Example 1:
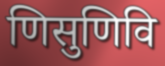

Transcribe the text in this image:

णिसुणिवि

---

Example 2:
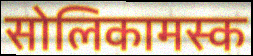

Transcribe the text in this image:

सोलिकामस्क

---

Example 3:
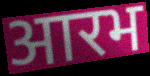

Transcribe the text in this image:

आरभ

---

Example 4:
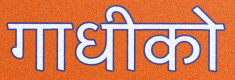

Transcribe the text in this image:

गाधीको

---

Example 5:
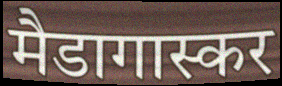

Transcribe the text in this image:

मैडागास्कर